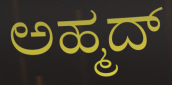
ಅಹ್ಮದ್